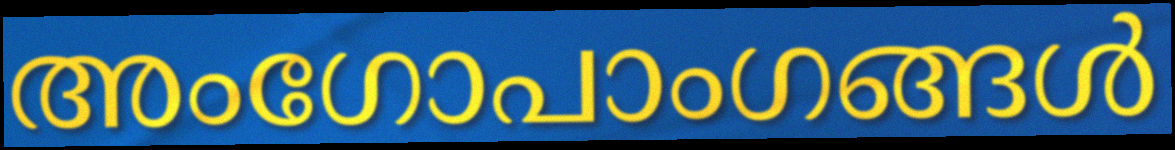
അംഗോപാംഗങ്ങൾ